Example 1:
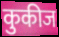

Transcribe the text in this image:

कुकीज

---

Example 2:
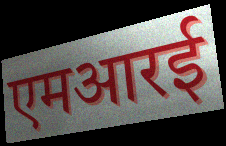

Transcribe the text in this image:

एमआरई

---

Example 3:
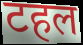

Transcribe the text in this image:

टहल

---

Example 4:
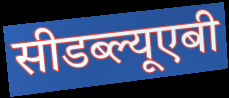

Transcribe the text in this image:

सीडब्ल्यूएबी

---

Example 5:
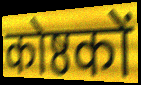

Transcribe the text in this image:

कोष्ठकों